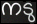
നടു